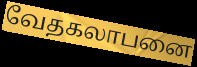
வேதகலாபனை